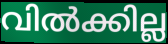
വിൽക്കില്ല